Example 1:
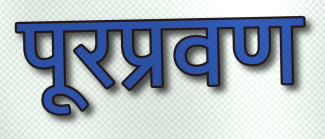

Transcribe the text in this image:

पूरप्रवण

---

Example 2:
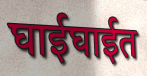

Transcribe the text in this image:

घाईघाईत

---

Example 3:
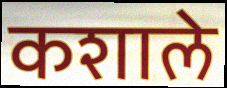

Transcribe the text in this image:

कशाले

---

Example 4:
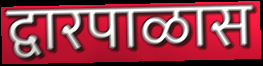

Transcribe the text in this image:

द्वारपाळास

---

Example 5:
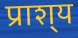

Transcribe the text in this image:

प्राश्य